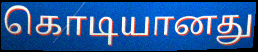
கொடியானது